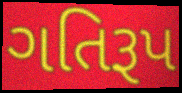
ગતિરૂપ